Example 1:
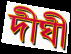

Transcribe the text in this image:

দীঘী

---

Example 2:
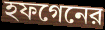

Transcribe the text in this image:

হফগেনের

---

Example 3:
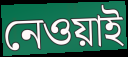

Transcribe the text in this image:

নেওয়াই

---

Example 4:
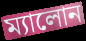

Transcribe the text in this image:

ম্যালোন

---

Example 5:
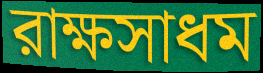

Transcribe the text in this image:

রাক্ষসাধম